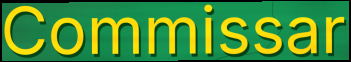
Commissar